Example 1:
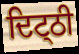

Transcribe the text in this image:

ਦਿਟ੍ਠੀ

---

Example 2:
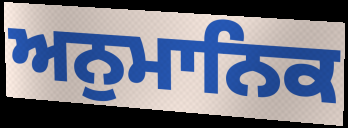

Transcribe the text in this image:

ਅਨੁਮਾਨਿਕ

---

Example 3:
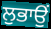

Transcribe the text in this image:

ਲੁਭਾਉਂ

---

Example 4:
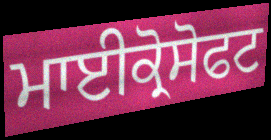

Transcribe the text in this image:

ਮਾਈਕ੍ਰੋਸੋਫਟ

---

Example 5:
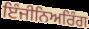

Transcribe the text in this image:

ਇੰਜੀਨਿਅਰਿੰਗ